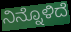
ನಿನ್ನೊಳಿದೆ